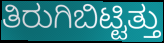
ತಿರುಗಿಬಿಟ್ಟಿತ್ತು